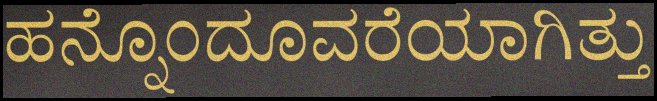
ಹನ್ನೊಂದೂವರೆಯಾಗಿತ್ತು